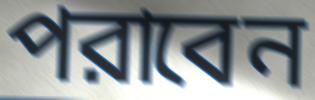
পরাবেন